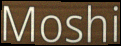
Moshi